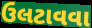
ઉલટાવવા